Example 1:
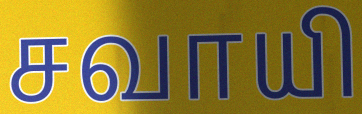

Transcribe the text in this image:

சவாயி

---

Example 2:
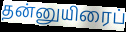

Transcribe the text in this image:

தன்னுயிரைப்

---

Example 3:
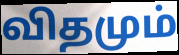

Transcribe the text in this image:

விதமும்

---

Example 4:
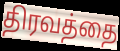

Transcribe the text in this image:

திரவத்தை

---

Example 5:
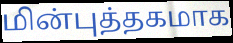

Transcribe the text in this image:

மின்புத்தகமாக